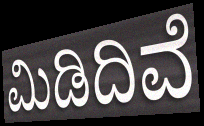
ಮಿಡಿದಿವೆ